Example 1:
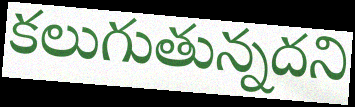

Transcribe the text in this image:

కలుగుతున్నదని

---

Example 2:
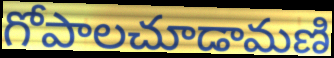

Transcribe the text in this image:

గోపాలచూడామణి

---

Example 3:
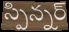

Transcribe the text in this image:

స్పిన్నర్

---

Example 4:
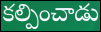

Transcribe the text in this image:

కల్పించాడు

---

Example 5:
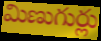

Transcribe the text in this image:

మిణుగుర్లు